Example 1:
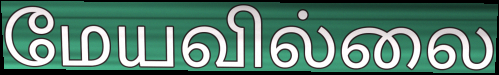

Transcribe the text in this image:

மேயவில்லை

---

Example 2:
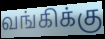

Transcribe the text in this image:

வங்கிக்கு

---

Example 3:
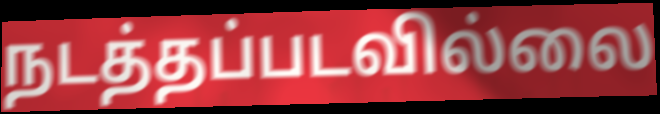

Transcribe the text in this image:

நடத்தப்படவில்லை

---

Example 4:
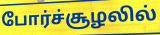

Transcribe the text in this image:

போர்ச்சூழலில்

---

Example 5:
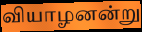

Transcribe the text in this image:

வியாழனன்று